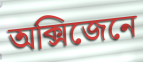
অক্সিজেনে